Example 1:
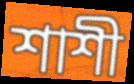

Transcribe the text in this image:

শাশী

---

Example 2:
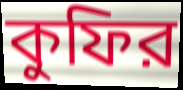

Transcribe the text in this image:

কুফির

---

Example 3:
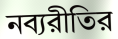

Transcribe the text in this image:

নব্যরীতির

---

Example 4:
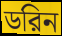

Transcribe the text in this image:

ডরিন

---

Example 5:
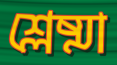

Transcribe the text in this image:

শ্লেষ্মা